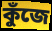
কুঁজে